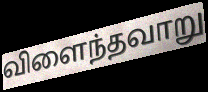
விளைந்தவாறு